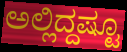
ಅಲ್ಲಿದ್ದಷ್ಟೂ